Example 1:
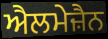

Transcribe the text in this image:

ਐਲਮੇਜ਼ੈਨ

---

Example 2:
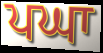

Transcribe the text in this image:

ਪਘਾ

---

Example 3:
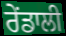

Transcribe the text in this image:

ਰੇਂਡਾਲੀ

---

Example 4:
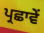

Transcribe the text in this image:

ਪ੍ਰਛਾਵੇਂ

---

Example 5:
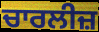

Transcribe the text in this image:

ਚਾਰਲੀਜ਼